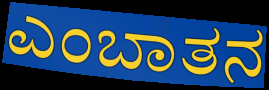
ಎಂಬಾತನ